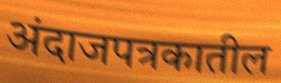
अंदाजपत्रकातील